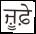
ਜ਼ੂਫ਼ੇ